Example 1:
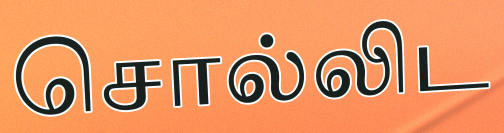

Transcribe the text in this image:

சொல்லிட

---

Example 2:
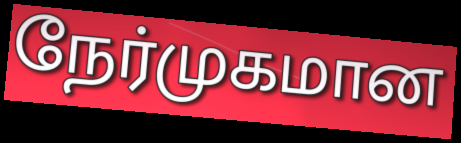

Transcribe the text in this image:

நேர்முகமான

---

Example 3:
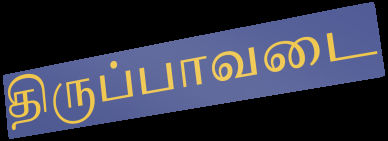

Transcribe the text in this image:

திருப்பாவடை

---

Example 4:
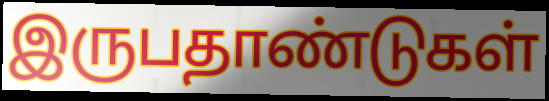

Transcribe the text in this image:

இருபதாண்டுகள்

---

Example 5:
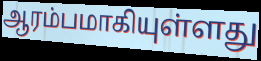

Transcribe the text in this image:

ஆரம்பமாகியுள்ளது